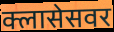
क्लासेसवर